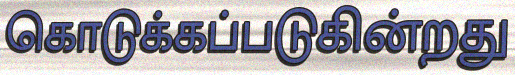
கொடுக்கப்படுகின்றது